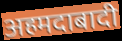
अहमदाबादी